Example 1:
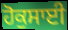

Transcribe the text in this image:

ਹੋਕੁਸਾਈ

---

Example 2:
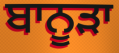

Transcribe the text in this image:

ਬਾਨੂੜਾ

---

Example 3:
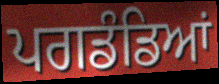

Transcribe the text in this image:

ਪਗਡੰਡਿਆਂ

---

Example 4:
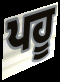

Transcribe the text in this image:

ਪਹੂ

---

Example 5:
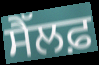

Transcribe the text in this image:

ਸੈੱਲਫ਼